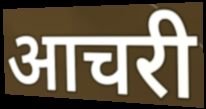
आचरी